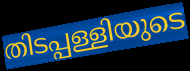
തിടപ്പള്ളിയുടെ